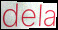
dela